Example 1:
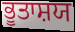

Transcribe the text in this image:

ਭੂਤਾਸ਼ਯ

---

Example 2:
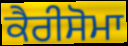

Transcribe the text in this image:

ਕੈਰੀਸੋਮਾ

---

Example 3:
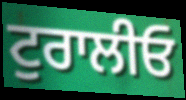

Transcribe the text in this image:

ਟੁਰਾਲੀਓ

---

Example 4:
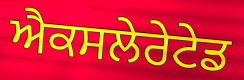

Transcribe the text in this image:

ਐਕਸਲੇਰੇਟੇਡ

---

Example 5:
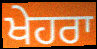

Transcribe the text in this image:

ਖੇਹਰਾ